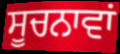
ਸੂਚਨਾਵਾਂ